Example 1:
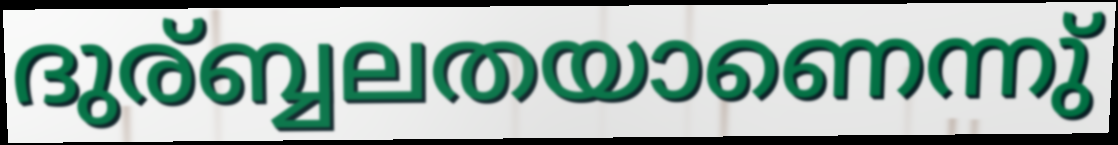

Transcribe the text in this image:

ദുര്ബ്ബലതയാണെന്നു്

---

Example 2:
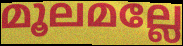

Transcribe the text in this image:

മൂലമല്ലേ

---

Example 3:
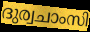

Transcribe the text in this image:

ദുര്വചാംസി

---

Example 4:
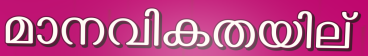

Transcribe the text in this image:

മാനവികതയില്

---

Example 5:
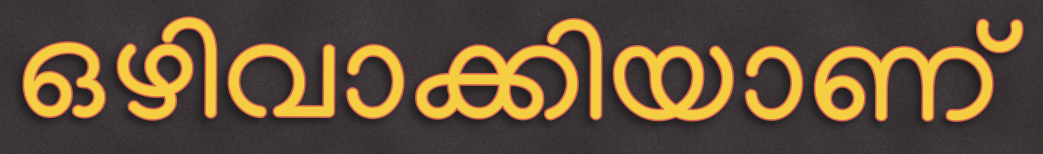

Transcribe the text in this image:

ഒഴിവാക്കിയാണ്